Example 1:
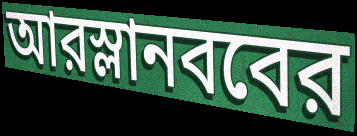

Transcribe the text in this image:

আরস্লানববের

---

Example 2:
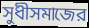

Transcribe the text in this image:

সুধীসমাজের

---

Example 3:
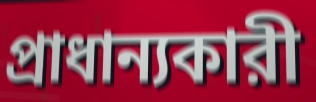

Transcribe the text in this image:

প্রাধান্যকারী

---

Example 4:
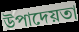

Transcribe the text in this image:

উপাদেয়তা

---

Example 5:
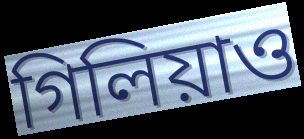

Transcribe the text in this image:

গিলিয়াও